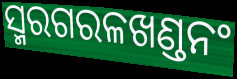
ସ୍ମରଗରଳଖଣ୍ଡନଂ